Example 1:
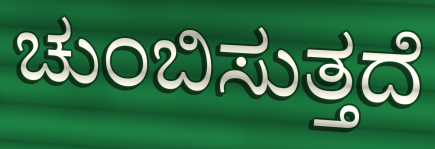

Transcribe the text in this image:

ಚುಂಬಿಸುತ್ತದೆ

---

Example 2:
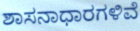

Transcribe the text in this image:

ಶಾಸನಾಧಾರಗಳಿವೆ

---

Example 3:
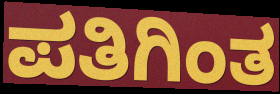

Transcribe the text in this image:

ಪತಿಗಿಂತ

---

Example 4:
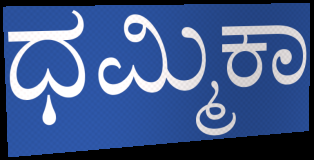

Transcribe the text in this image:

ಧಮ್ಮಿಕಾ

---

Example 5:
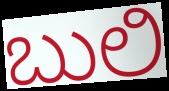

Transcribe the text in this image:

ಬುಲಿ